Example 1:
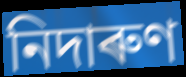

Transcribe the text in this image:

নিদাৰুণ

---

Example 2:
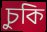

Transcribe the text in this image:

চুকি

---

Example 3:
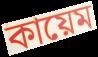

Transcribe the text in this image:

কায়েম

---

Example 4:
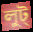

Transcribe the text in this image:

লুট্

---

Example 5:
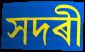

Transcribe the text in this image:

সদৰী